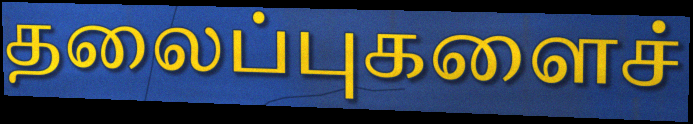
தலைப்புகளைச்